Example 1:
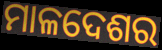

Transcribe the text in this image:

ମାଳଦେଶର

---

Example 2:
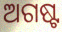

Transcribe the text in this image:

ଅଗଷ୍ଟ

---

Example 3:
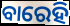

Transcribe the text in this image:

ବାରେହି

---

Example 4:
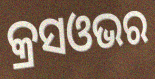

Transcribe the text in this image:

କ୍ରସଓଭର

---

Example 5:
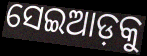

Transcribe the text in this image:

ସେଇଆଡ଼କୁ